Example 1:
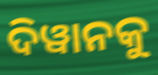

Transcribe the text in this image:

ଦିୱାନକୁ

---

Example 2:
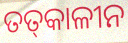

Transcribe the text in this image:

ତତ୍‍କାଳୀନ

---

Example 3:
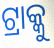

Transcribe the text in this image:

ଟ୍ରାକ୍କୁ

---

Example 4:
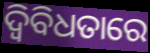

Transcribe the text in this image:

ଦ୍ୱିବିଧତାରେ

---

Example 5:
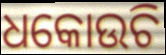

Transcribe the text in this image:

ଧକୋଉଚି